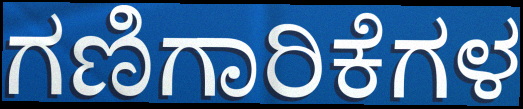
ಗಣಿಗಾರಿಕೆಗಳ